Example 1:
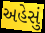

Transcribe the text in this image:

અહેસું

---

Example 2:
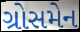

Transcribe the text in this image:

ગ્રોસમેન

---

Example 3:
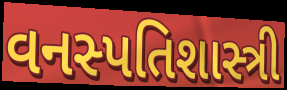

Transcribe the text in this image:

વનસ્પતિશાસ્ત્રી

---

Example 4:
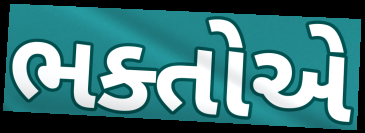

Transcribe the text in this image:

ભક્તોએ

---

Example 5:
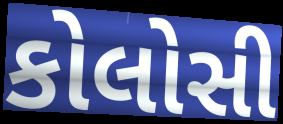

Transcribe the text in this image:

કોલોસી